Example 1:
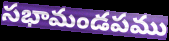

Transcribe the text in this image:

సభామండపము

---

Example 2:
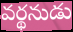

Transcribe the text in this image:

వర్థనుడు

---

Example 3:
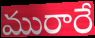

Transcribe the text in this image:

మురారే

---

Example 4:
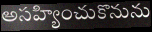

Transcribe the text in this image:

అసహ్యించుకొనును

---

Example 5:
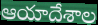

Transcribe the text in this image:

ఆయాదేశాల